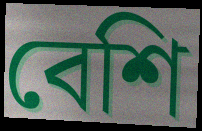
বেশি